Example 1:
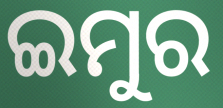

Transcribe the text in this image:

ଇମୁର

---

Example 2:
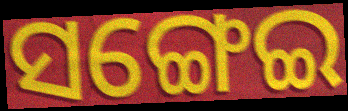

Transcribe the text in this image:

ସଙ୍ଗେଇ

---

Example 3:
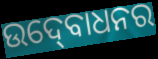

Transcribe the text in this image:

ଉଦ୍‍ବୋଧନର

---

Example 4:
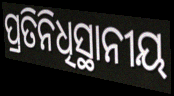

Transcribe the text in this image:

ପ୍ରତିନିଧିସ୍ଥାନୀୟ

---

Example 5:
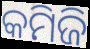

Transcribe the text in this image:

କମିଜି